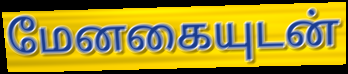
மேனகையுடன்